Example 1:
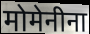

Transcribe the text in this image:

मोमेनीना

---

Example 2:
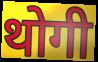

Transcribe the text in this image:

थोगी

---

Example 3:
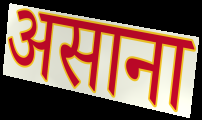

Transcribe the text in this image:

असाना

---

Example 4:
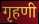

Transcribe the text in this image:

गृहणी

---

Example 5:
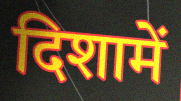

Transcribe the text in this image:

दिशामें